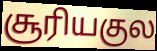
சூரியகுல